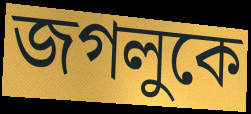
জগলুকে